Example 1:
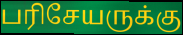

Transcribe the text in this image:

பரிசேயருக்கு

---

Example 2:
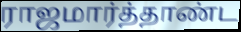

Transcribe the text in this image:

ராஜமார்த்தாண்ட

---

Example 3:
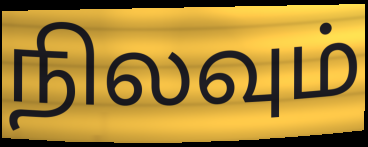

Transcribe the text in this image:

நிலவும்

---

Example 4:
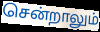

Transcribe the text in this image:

சென்றாலும்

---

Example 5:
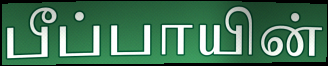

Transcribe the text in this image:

பீப்பாயின்